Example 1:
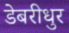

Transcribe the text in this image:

डेबरीधुर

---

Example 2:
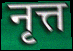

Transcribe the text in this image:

नृत्त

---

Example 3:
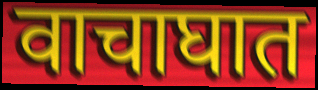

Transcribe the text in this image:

वाचाघात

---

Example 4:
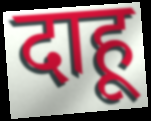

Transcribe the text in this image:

दाहू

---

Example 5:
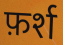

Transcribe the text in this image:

फ़र्श